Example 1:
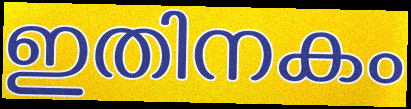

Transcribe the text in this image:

ഇതിനകം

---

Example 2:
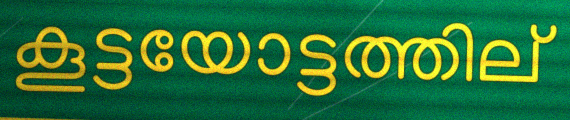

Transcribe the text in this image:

കൂട്ടയോട്ടത്തില്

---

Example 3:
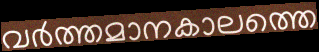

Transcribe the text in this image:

വർത്തമാനകാലത്തെ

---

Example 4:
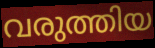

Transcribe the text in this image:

വരുത്തിയ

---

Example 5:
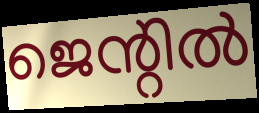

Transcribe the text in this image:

ജെന്റിൽ